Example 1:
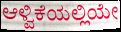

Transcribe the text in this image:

ಆಳ್ವಿಕೆಯಲ್ಲಿಯೇ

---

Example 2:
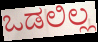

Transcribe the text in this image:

ಒಡಲಿಲ್ಲ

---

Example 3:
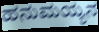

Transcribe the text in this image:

ಹನುಮಯ್ಯನ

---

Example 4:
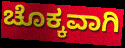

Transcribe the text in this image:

ಚೊಕ್ಕವಾಗಿ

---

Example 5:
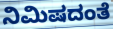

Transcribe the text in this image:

ನಿಮಿಷದಂತೆ